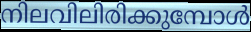
നിലവിലിരിക്കുമ്പോൾ